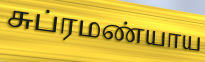
சுப்ரமண்யாய